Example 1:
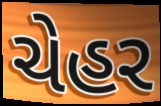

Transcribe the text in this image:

ચેહર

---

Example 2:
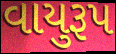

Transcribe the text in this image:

વાયુરૂપ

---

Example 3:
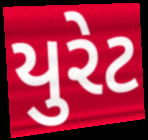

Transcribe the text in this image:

યુરેટ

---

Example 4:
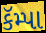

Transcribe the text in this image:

કૅમ્પા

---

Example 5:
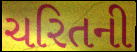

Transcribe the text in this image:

ચરિતની